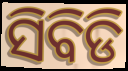
ସିବିଡି